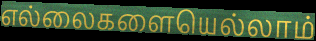
எல்லைகளையெல்லாம்